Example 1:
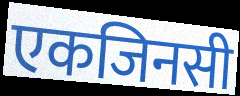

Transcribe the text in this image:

एकजिनसी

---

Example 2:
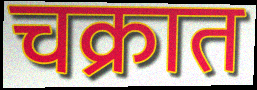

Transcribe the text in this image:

चक्रात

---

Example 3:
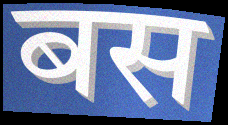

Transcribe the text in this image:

बस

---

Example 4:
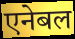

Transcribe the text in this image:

एनेबल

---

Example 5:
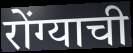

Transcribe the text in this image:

रोंग्याची